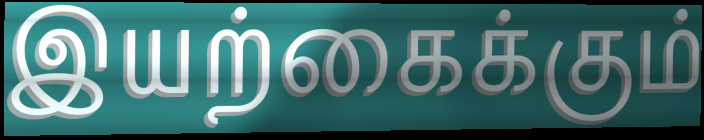
இயற்கைக்கும்